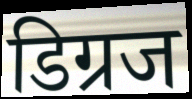
डिग्रज